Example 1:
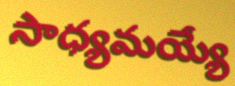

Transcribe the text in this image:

సాధ్యమయ్యే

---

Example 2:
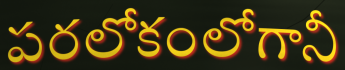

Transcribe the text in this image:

పరలోకంలోగానీ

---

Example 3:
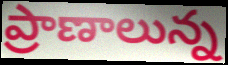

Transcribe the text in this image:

ప్రాణాలున్న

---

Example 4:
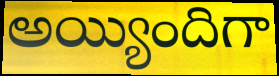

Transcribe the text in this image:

అయ్యిందిగా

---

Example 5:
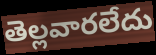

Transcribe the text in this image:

తెల్లవారలేదు